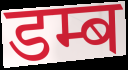
डम्ब